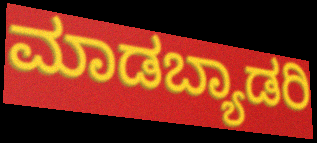
ಮಾಡಬ್ಯಾಡರಿ